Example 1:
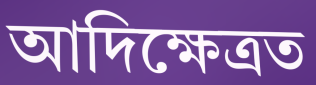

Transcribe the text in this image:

আদিক্ষেত্ৰত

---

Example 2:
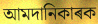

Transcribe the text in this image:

আমদানিকাৰক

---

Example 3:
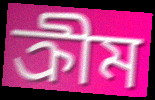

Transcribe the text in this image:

ক্ৰীম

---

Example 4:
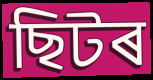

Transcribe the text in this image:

ছিটৰ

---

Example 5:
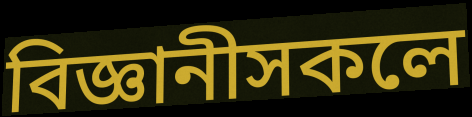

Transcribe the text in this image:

বিজ্ঞানীসকলে